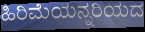
ಹಿರಿಮೆಯನ್ನರಿಯದ